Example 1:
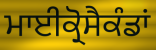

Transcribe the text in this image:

ਮਾਈਕ੍ਰੋਸੈਕੰਡਾਂ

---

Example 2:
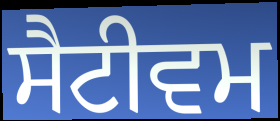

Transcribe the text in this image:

ਸੈਟੀਵਮ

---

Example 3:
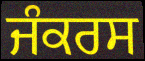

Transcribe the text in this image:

ਜੰਕਰਸ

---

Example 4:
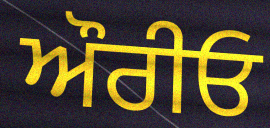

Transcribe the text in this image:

ਔਰੀਓ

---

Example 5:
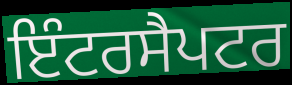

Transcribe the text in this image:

ਇੰਟਰਸੈਪਟਰ